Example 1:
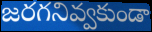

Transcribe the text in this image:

జరగనివ్వకుండా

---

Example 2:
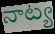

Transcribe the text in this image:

నాట్య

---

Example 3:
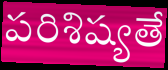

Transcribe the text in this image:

పరిశిష్యతే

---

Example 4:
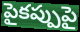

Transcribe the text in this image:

పైకప్పుపై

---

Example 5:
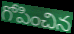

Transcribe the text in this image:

గోపించిన